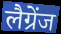
लैग्रेंज